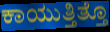
ಕಾಯುತ್ತಿತ್ತೊ